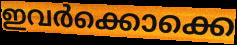
ഇവർക്കൊക്കെ